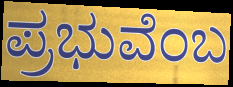
ಪ್ರಭುವೆಂಬ